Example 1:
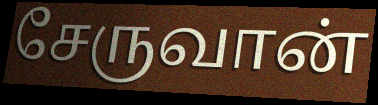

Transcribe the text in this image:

சேருவான்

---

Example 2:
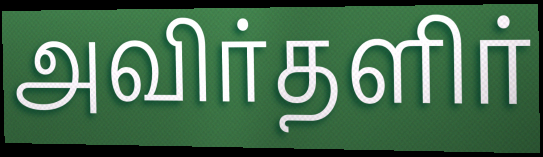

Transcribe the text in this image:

அவிர்தளிர்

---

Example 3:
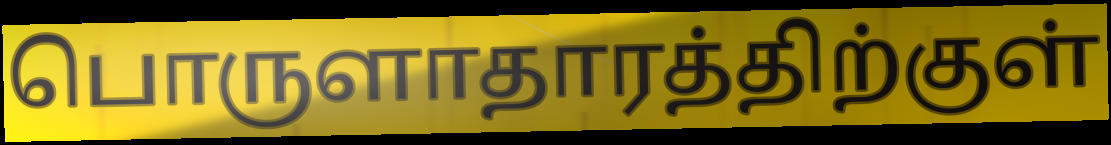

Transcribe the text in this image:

பொருளாதாரத்திற்குள்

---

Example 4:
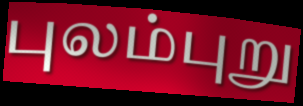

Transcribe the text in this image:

புலம்புறு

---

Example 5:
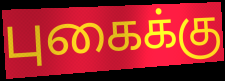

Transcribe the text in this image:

புகைக்கு